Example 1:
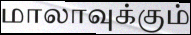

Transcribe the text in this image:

மாலாவுக்கும்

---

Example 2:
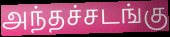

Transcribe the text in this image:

அந்தச்சடங்கு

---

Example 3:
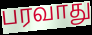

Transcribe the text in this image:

பரவாது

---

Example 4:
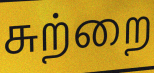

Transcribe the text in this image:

சுற்றை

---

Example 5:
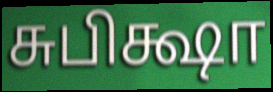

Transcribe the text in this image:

சுபிக்ஷா